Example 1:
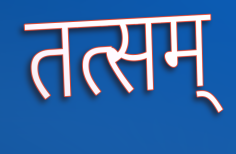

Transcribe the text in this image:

तत्सम्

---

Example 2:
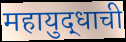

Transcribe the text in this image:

महायुद्धाची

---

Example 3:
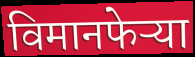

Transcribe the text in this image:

विमानफेऱ्या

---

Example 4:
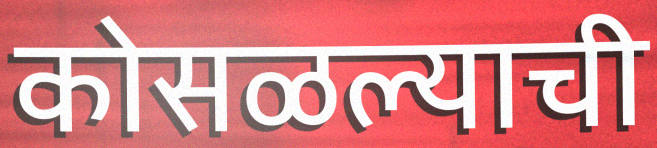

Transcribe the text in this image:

कोसळल्याची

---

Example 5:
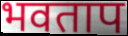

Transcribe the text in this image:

भवताप